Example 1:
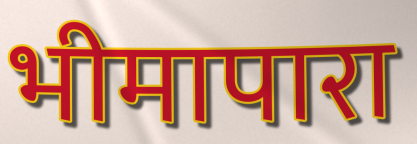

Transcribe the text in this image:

भीमापारा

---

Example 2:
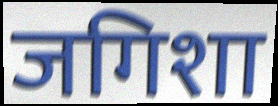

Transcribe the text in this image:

जगिशा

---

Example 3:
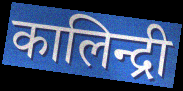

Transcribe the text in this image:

कालिन्द्री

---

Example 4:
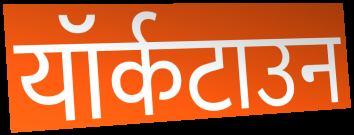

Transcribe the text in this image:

यॉर्कटाउन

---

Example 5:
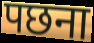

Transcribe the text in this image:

पछना